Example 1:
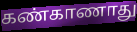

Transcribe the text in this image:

கண்காணாது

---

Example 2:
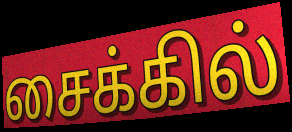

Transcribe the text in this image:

சைக்கில்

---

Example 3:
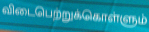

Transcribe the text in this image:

விடைபெற்றுக்கொள்ளும்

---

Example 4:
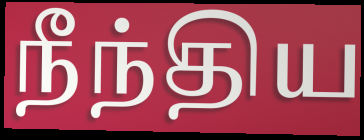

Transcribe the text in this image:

நீந்திய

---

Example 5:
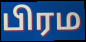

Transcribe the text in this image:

பிரம